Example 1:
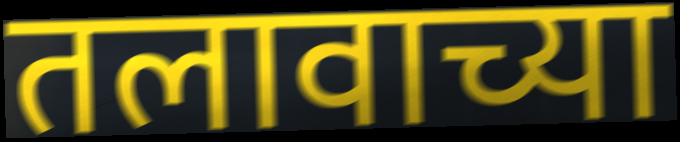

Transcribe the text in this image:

तलावाच्या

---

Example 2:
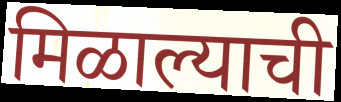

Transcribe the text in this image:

मिळाल्याची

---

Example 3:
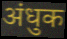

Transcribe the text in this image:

अंधुक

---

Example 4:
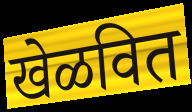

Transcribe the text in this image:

खेळवित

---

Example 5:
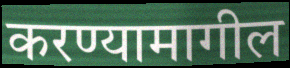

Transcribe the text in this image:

करण्यामागील